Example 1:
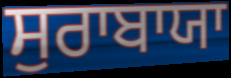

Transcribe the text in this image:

ਸੁਰਾਬਾਯਾ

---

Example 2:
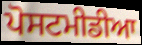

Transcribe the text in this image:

ਪੋਸਟਮੀਡੀਆ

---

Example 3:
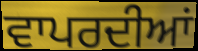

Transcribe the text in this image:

ਵਾਪਰਦੀਆਂ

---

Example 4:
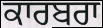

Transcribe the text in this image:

ਕਾਰਬਰਾ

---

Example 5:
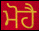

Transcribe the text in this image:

ਮੋਹੈ